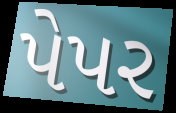
પેપર